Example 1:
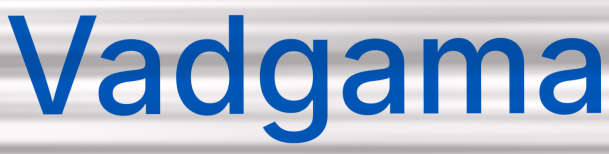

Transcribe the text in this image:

Vadgama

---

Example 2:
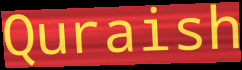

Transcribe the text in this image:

Quraish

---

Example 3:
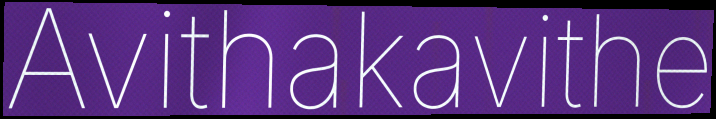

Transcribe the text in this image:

Avithakavithe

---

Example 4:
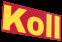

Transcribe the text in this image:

Koll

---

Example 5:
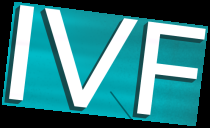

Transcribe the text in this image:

IVF